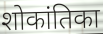
शोकांतिका